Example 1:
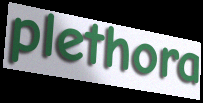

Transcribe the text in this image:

plethora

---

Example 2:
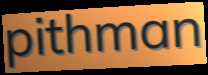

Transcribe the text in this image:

pithman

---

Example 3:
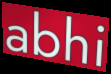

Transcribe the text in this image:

abhi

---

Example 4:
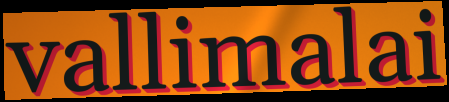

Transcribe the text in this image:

vallimalai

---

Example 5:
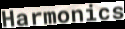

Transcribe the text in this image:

Harmonics